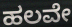
ಹಲವೇ